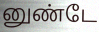
னுண்டே